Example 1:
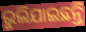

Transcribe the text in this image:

ଭୁଲିଯାଇଛନ୍ତି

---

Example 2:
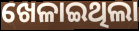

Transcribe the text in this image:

ଖେଳାଇଥିଲା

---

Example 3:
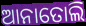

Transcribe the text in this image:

ଆନାତୋଲି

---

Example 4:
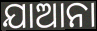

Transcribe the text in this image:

ଯାଆନା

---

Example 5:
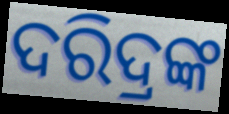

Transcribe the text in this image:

ଦରିଦ୍ରଙ୍କ